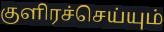
குளிரச்செய்யும்